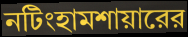
নটিংহামশায়ারের